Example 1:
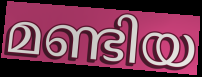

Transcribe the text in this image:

മണ്ടിയ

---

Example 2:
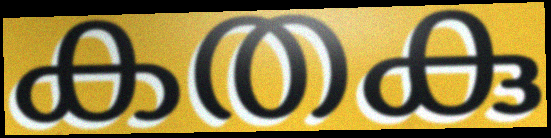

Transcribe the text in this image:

കതകു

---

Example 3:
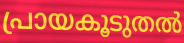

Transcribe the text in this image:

പ്രായകൂടുതൽ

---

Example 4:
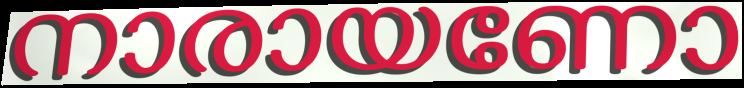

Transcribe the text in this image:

നാരായണോ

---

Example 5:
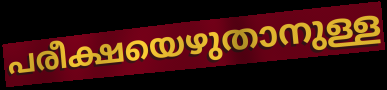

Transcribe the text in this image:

പരീക്ഷയെഴുതാനുള്ള